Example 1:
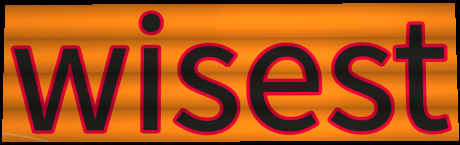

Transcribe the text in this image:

wisest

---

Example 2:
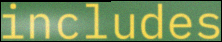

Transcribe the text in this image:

includes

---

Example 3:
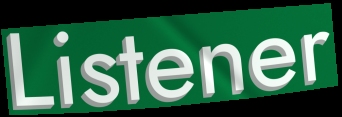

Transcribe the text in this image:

Listener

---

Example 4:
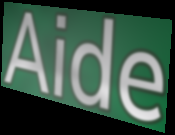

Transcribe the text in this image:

Aide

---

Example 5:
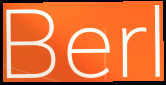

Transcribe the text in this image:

Berl